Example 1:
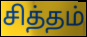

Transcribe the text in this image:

சித்தம்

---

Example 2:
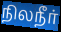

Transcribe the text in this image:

நிலநீர்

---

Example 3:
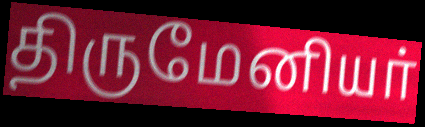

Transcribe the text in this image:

திருமேனியர்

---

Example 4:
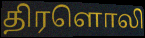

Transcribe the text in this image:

திரளொலி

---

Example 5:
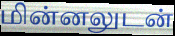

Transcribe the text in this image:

மின்னலுடன்